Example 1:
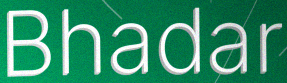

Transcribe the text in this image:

Bhadar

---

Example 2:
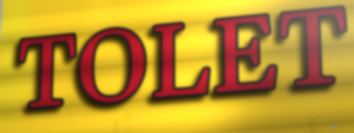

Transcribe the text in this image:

TOLET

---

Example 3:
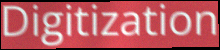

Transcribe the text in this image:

Digitization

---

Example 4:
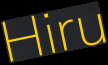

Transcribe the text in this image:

Hiru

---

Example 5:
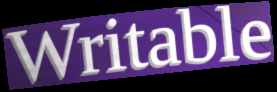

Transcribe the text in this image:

Writable